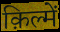
क़िल्में